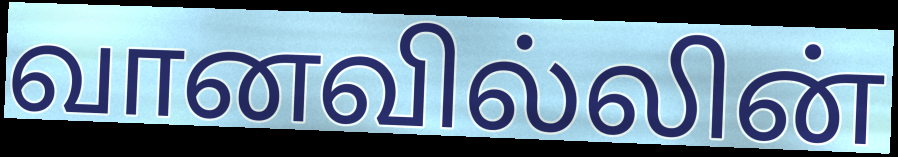
வானவில்லின்